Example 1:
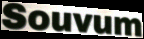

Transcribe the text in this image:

Souvum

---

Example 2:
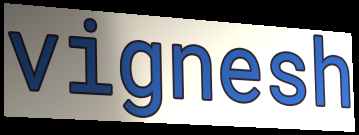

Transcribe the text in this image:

vignesh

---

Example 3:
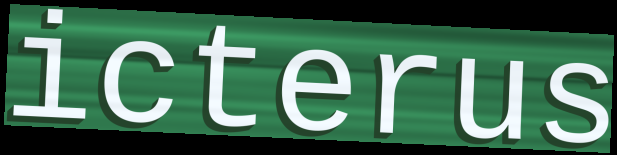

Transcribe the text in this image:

icterus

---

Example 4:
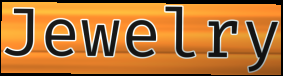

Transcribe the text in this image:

Jewelry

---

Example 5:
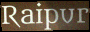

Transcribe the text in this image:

Raipur